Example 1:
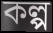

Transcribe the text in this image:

কল্প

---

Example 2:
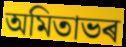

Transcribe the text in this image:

অমিতাভৰ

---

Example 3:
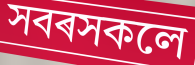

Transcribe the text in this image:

সবৰসকলে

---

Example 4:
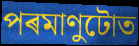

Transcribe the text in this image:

পৰমাণুটোত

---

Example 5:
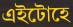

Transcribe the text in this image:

এইটোহে